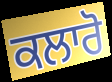
ਕਲਾਰੋ